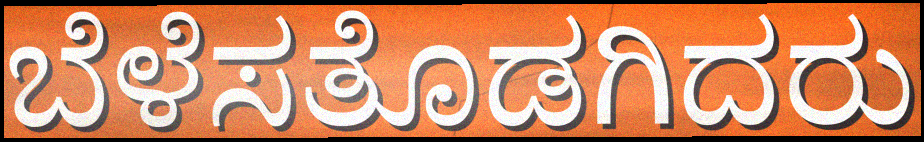
ಬೆಳೆಸತೊಡಗಿದರು